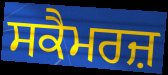
ਸਕੈਮਰਜ਼